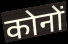
कोनों